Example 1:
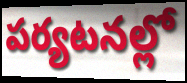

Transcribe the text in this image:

పర్యటనల్లో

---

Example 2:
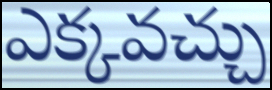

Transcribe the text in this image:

ఎక్కవచ్చు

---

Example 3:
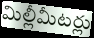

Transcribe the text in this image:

మిల్లీమీటర్లు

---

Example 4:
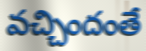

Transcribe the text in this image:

వచ్చిందంతే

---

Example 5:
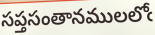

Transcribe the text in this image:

సప్తసంతానములలోఁ